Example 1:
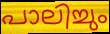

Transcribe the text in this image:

പാലിച്ചും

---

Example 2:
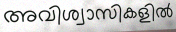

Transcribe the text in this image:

അവിശ്വാസികളിൽ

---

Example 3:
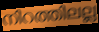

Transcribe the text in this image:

നിറത്തിലല്ല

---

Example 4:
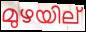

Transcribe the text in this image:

മുഴയില്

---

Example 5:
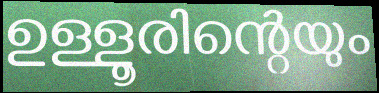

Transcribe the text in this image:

ഉള്ളൂരിന്റെയും